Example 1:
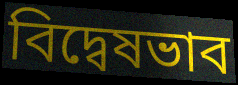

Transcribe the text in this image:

বিদ্বেষভাব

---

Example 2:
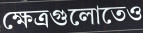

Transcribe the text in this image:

ক্ষেত্রগুলোতেও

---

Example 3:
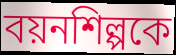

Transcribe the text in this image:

বয়নশিল্পকে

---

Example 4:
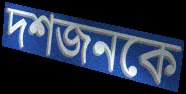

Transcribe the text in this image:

দশজনকে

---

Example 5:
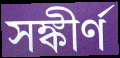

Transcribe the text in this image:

সঙ্কীর্ণ